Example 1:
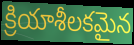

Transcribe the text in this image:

క్రియాశీలకమైన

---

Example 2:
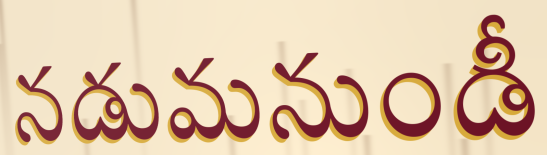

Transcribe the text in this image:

నడుమనుండీ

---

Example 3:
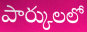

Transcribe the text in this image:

పార్కులలో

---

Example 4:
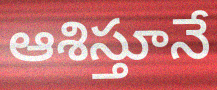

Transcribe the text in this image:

ఆశిస్తూనే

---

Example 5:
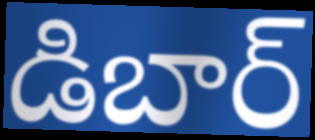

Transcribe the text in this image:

డిబార్